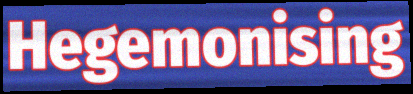
Hegemonising